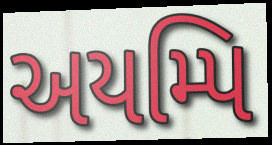
અયમ્પિ